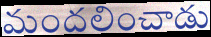
మందలించాడు